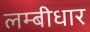
लम्बीधार